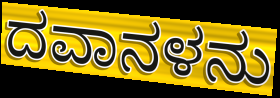
ದವಾನಳನು